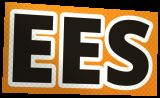
EES